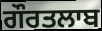
ਗੌਰਤਲਾਬ